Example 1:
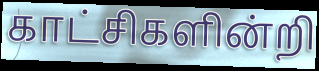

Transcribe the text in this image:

காட்சிகளின்றி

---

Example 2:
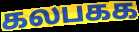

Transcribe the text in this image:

கலபகக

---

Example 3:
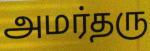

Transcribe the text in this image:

அமர்தரு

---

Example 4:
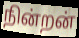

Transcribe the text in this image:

நின்றன்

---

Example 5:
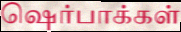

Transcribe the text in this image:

ஷெர்பாக்கள்